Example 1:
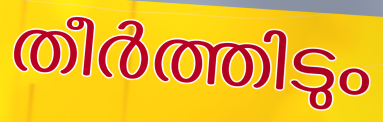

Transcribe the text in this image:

തീർത്തിടും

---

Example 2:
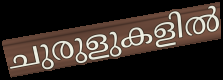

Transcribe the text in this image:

ചുരുളുകളിൽ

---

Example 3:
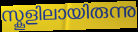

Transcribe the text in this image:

സ്കൂളിലായിരുന്നു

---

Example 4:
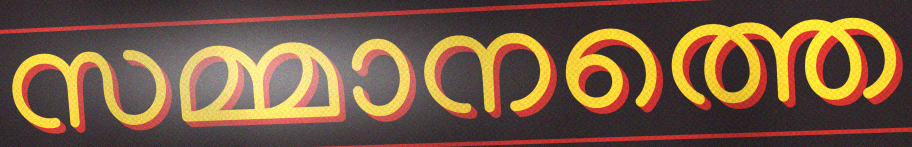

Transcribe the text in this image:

സമ്മാനത്തെ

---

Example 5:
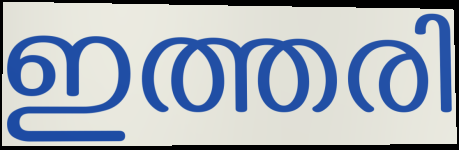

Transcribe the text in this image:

ഇത്തരി